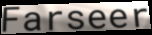
Farseer